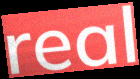
real